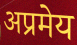
अप्रमेय